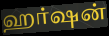
ஹர்ஷன்